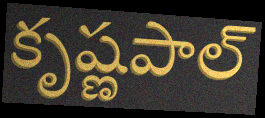
కృష్ణపాల్